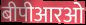
बीपीआरओ